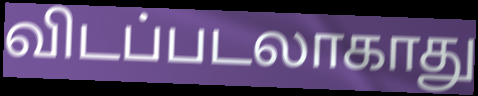
விடப்படலாகாது